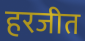
हरजीत